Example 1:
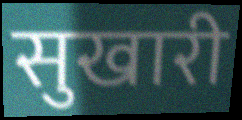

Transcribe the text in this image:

सुखारी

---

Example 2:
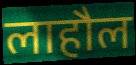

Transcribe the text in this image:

लाहौल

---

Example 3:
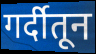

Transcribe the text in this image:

गर्दीतून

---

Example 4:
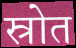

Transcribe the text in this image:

स्रोत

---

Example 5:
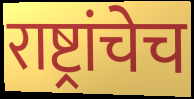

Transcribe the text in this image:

राष्ट्रांचेच